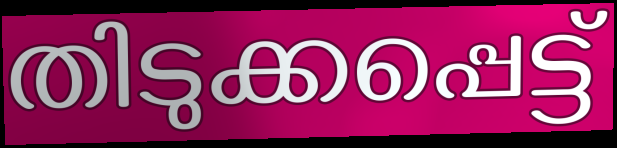
തിടുക്കപ്പെട്ട്